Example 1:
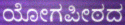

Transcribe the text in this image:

ಯೋಗಪೀಠದ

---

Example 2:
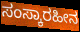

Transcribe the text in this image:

ಸಂಸ್ಕಾರಹೀನ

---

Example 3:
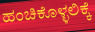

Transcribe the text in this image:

ಹಂಚಿಕೊಳ್ಳಲಿಕ್ಕೆ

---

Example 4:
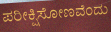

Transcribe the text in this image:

ಪರೀಕ್ಷಿಸೋಣವೆಂದು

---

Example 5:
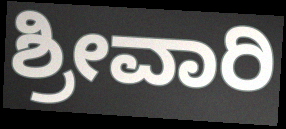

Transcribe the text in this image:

ಶ್ರೀವಾರಿ